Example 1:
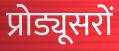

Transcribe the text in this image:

प्रोड्यूसरों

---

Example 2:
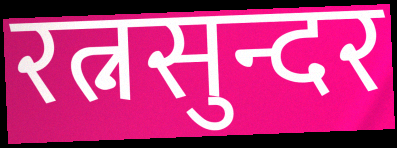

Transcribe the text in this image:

रत्नसुन्दर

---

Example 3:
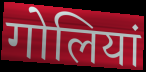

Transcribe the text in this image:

गोलियां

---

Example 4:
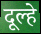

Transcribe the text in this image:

दूल्हे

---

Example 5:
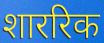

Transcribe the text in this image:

शाररिक